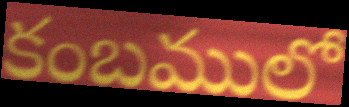
కంబములో